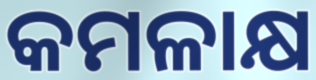
କମଳାକ୍ଷ